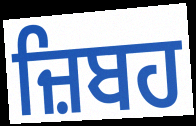
ਜ਼ਿਬਹ